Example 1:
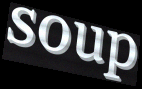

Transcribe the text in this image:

soup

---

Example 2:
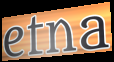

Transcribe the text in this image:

etna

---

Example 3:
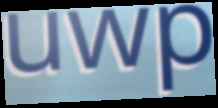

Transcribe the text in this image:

uwp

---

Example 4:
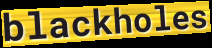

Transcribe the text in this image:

blackholes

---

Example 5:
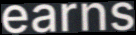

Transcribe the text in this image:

earns